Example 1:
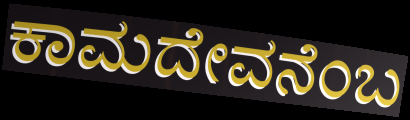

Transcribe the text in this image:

ಕಾಮದೇವನೆಂಬ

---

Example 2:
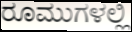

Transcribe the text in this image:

ರೂಮುಗಳಲ್ಲಿ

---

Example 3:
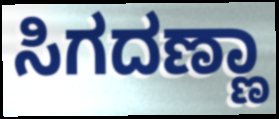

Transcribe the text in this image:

ಸಿಗದಣ್ಣಾ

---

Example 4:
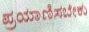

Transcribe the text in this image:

ಪ್ರಯಾಣಿಸಬೇಕು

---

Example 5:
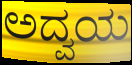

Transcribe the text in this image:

ಅದ್ವಯ